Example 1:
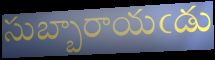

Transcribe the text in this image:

సుబ్బారాయఁడు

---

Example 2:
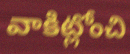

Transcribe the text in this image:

వాకిట్లోంచి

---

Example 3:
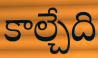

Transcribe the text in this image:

కాల్చేది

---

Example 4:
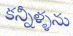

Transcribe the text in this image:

కన్నీళ్ళను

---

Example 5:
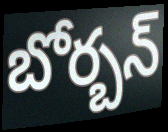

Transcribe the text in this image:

బోర్బన్